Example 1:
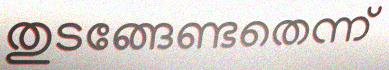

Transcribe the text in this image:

തുടങ്ങേണ്ടതെന്ന്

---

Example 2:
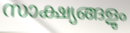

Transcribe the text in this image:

സാക്ഷ്യങ്ങളും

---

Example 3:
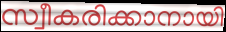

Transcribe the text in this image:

സ്വീകരിക്കാനായി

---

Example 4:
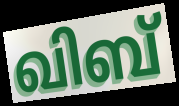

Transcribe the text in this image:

ഖിബ്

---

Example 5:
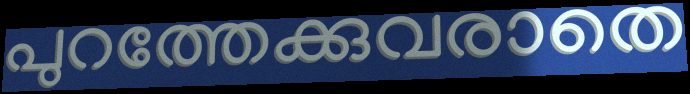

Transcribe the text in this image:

പുറത്തേക്കുവരാതെ